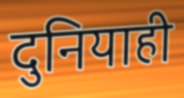
दुनियाही